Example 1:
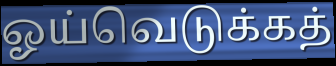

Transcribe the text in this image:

ஓய்வெடுக்கத்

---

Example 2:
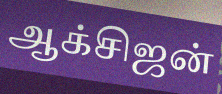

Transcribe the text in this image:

ஆக்சிஜன்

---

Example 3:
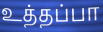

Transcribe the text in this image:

உத்தப்பா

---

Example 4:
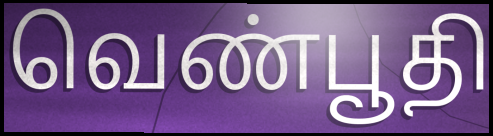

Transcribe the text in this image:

வெண்பூதி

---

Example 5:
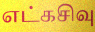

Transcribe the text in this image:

எட்கசிவு